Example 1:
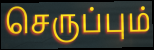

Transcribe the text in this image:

செருப்பும்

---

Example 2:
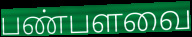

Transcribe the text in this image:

பண்பளவை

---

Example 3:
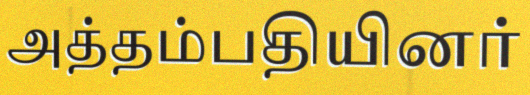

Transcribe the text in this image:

அத்தம்பதியினர்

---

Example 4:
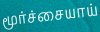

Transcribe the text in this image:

மூர்ச்சையாய்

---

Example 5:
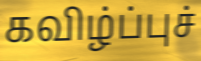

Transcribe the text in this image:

கவிழ்ப்புச்